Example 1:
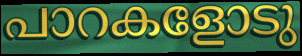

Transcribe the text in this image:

പാറകളോടു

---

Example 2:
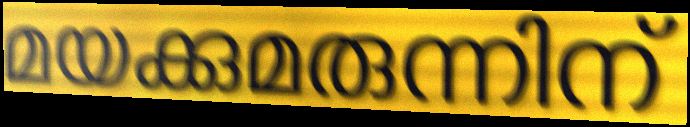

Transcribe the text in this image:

മയക്കുമരുന്നിന്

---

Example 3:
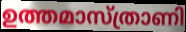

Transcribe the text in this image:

ഉത്തമാസ്ത്രാണി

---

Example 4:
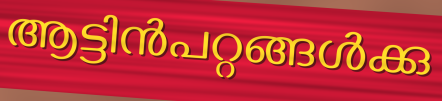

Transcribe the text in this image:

ആട്ടിൻപറ്റങ്ങൾക്കു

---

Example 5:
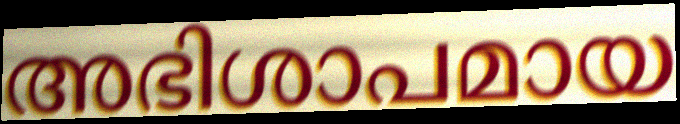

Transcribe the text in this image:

അഭിശാപമായ